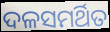
ଦଳସମର୍ଥିତ